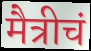
मैत्रीचं